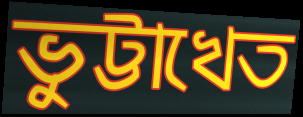
ভুট্টাখেত